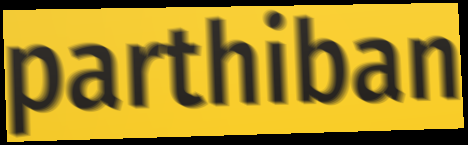
parthiban